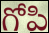
గోపి